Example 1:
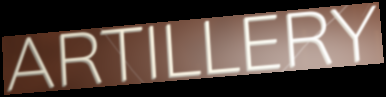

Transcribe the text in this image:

ARTILLERY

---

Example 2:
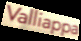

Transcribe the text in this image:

Valliappa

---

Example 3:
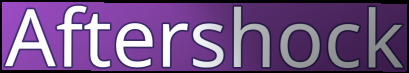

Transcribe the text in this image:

Aftershock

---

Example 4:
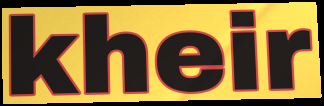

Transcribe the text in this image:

kheir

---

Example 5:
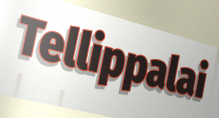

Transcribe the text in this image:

Tellippalai